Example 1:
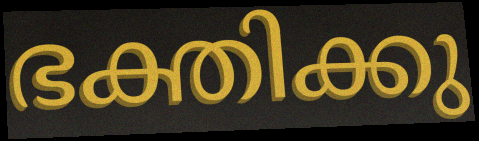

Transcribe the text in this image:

ഭക്തിക്കു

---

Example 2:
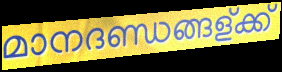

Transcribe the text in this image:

മാനദണ്ഡങ്ങള്ക്ക്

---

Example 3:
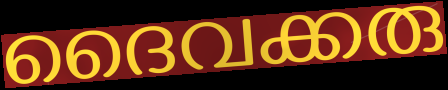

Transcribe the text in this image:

ദൈവക്കരു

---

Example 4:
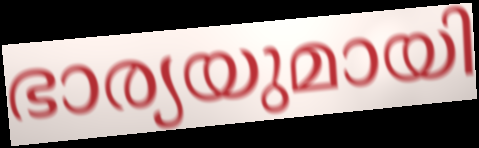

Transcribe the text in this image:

ഭാര്യയുമായി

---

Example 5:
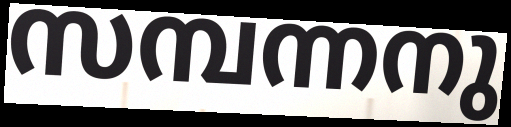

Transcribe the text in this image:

സമ്പന്നനു